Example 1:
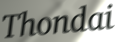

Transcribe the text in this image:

Thondai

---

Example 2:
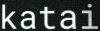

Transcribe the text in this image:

katai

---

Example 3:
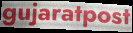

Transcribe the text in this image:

gujaratpost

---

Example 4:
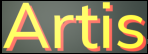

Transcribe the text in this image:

Artis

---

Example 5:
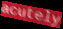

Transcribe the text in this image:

acutely